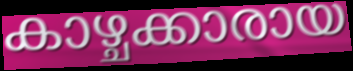
കാഴ്ചക്കാരായ